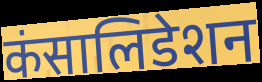
कंसालिडेशन